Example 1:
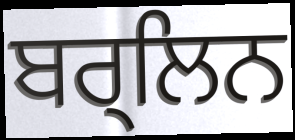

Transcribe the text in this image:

ਬਰ੍ਲਿਨ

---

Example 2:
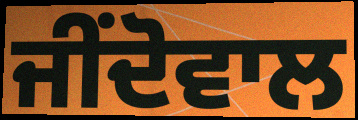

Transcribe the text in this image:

ਜੀਂਦੋਵਾਲ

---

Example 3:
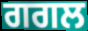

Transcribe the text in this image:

ਗਗਲ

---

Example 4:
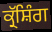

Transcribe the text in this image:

ਕ੍ਰੱਸ਼ਿੰਗ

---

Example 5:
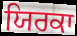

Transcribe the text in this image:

ਯਿਰਕਾ